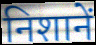
निशानें